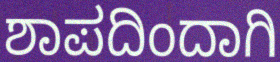
ಶಾಪದಿಂದಾಗಿ